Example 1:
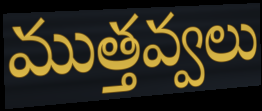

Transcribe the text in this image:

ముత్తవ్వలు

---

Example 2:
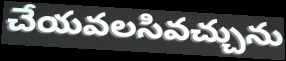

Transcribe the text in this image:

చేయవలసివచ్చును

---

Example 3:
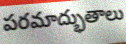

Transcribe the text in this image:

పరమాద్భుతాలు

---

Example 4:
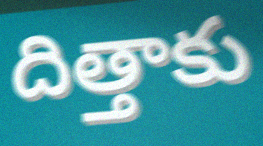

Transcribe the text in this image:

దిత్తాకు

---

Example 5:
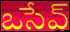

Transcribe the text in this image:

ఒసేవ్